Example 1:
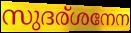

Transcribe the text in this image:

സുദര്ശനേന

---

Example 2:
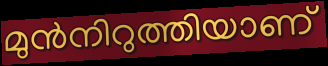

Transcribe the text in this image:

മുൻനിറുത്തിയാണ്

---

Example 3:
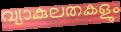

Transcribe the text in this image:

വ്യാകുലതകളും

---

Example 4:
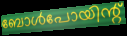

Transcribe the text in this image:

ബോൾപോയിന്റ്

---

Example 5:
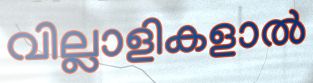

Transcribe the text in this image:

വില്ലാളികളാൽ